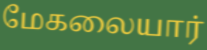
மேகலையார்